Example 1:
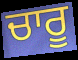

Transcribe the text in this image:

ਚਾਰੂ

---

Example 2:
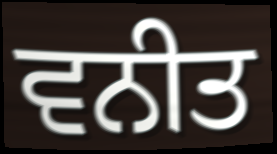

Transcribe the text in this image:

ਵਨੀਤ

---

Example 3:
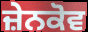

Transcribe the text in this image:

ਜ਼ੇਨਕੋਵ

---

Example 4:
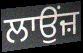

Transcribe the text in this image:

ਲਾਉਂਜ਼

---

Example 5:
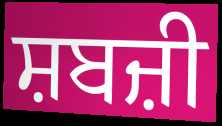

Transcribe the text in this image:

ਸ਼ਬਜ਼ੀ